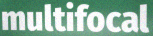
multifocal